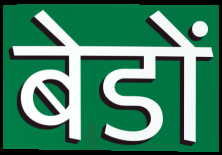
बेडों